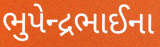
ભુપેન્દ્રભાઈના